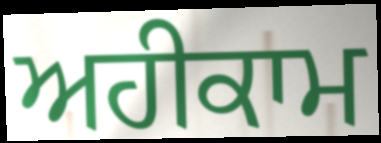
ਅਹੀਕਾਮ